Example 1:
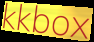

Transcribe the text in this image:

kkbox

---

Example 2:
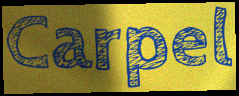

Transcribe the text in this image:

Carpel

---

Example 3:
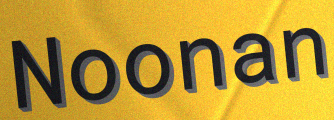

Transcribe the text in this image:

Noonan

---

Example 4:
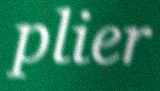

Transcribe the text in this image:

plier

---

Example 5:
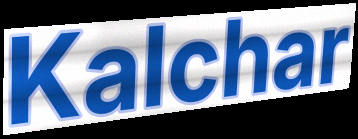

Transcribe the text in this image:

Kalchar